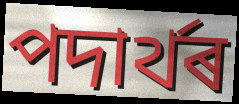
পদাৰ্থৰ